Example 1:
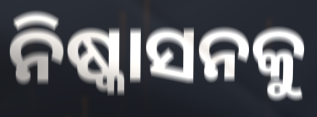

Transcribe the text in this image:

ନିଷ୍କାସନକୁ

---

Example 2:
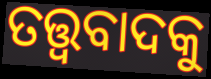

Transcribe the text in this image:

ତତ୍ତ୍ୱବାଦକୁ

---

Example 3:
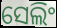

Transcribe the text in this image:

ସେଲିଂ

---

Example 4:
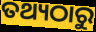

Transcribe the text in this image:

ତଥ୍ୟଠାରୁ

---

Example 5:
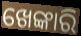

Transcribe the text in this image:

ଖେଙ୍କାରି